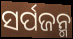
ସର୍ପଜନ୍ମ